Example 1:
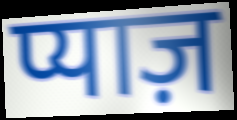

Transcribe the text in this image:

प्याज़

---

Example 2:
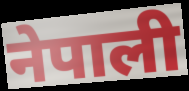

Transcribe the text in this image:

नेपाली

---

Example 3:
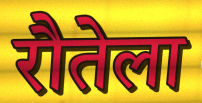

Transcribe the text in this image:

रौतेला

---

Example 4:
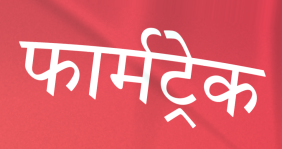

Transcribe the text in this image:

फार्मट्रेक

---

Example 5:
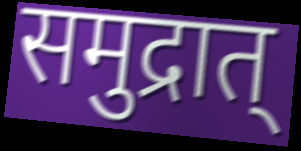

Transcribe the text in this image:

समुद्रात्